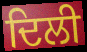
ਦਿਲੀ